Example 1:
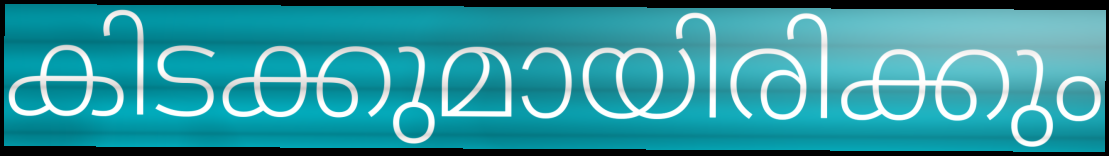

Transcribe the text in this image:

കിടക്കുമായിരിക്കും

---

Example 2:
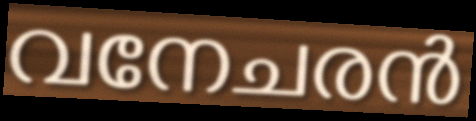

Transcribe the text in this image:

വനേചരൻ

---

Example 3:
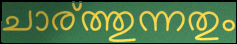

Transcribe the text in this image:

ചാര്ത്തുന്നതും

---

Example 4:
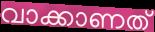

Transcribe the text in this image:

വാക്കാണത്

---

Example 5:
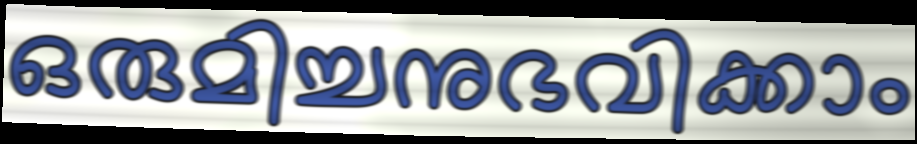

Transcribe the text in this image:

ഒരുമിച്ചനുഭവിക്കാം